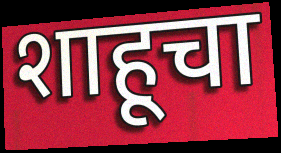
शाहूचा